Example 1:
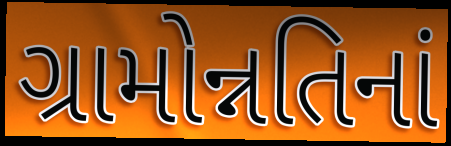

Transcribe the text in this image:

ગ્રામોન્નતિનાં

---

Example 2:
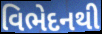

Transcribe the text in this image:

વિભેદનથી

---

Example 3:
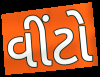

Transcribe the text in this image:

વીંટો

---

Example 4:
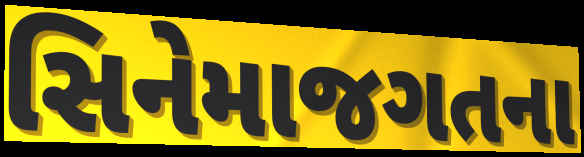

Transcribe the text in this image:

સિનેમાજગતના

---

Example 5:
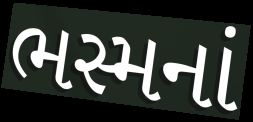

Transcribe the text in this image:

ભસ્મનાં